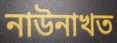
নাউনাখত